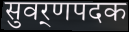
सुवर्णपदक